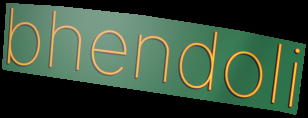
bhendoli